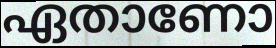
ഏതാണോ